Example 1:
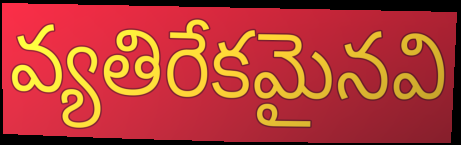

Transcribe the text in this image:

వ్యతిరేకమైనవి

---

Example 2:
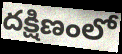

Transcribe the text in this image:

దక్షిణంలో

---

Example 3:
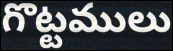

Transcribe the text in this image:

గొట్టములు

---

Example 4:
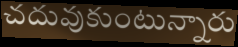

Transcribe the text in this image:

చదువుకుంటున్నారు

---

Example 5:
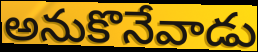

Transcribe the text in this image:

అనుకొనేవాడు